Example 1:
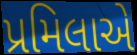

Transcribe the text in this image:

પ્રમિલાએ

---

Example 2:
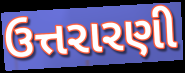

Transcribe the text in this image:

ઉત્તરારણી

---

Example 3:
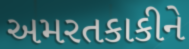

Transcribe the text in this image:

અમરતકાકીને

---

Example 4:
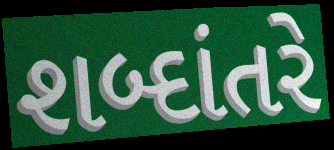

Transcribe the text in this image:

શબ્દાંતરે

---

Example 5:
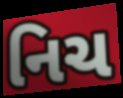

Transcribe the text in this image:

નિચ